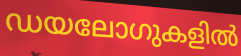
ഡയലോഗുകളിൽ